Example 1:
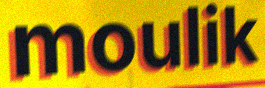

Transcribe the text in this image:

moulik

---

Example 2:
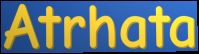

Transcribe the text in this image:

Atrhata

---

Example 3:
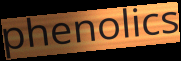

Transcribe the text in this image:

phenolics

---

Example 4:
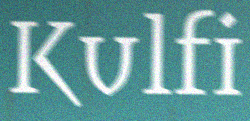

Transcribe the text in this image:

Kulfi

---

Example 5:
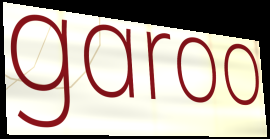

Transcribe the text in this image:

garoo